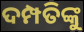
ଦମ୍ପତିଙ୍କୁ